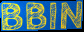
BBIN